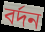
বর্দন